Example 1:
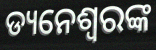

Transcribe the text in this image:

ଡ୍ୟନେଶ୍ୱରଙ୍କ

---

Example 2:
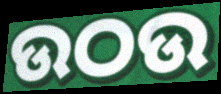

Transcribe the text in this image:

ଉଠଉ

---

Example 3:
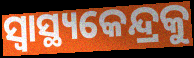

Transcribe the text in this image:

ସ୍ୱାସ୍ଥ୍ୟକେନ୍ଦ୍ରକୁ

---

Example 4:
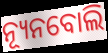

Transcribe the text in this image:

ନ୍ୟୂନବୋଲି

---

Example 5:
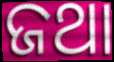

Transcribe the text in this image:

ଜଥା